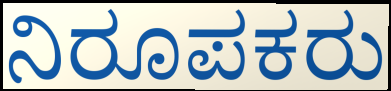
ನಿರೂಪಕರು